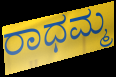
ರಾಧಮ್ಮ